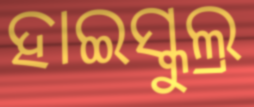
ହାଇସ୍କୁଲ୍ର